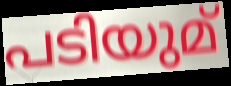
പടിയുമ്